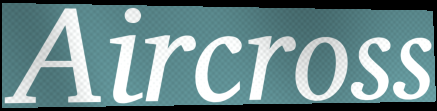
Aircross